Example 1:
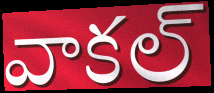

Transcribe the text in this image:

వాకల్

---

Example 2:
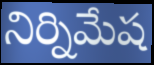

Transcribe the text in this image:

నిర్నిమేష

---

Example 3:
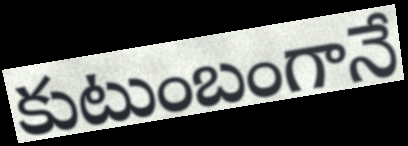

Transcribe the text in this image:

కుటుంబంగానే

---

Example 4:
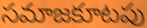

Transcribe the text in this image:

సమాజకూటపు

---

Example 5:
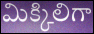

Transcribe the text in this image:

మిక్కిలిగా